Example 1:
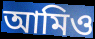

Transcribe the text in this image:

আমিও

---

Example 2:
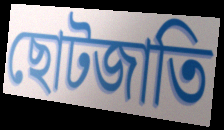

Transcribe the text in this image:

ছোটজাতি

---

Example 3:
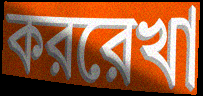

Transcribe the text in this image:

কররেখা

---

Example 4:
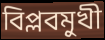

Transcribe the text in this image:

বিপ্লবমুখী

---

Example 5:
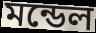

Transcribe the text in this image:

মন্ডেল